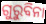
ଗୁରୁବିନା